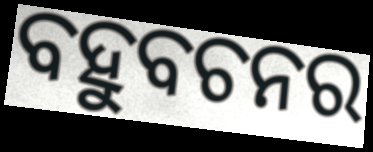
ବହୁବଚନର